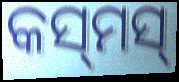
କସ୍‌ମସ୍